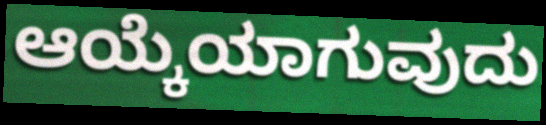
ಆಯ್ಕೆಯಾಗುವುದು